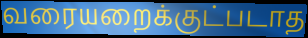
வரையறைக்குட்படாத